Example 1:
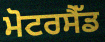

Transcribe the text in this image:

ਮੋਟਰਸੈੱਡ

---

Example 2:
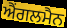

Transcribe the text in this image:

ਐਂਗਲਮੈਨ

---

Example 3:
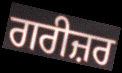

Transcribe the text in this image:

ਗਰੀਜ਼ਰ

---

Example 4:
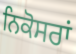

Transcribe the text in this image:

ਨਿਕੋਸਰਾਂ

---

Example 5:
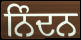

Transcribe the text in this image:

ਨਿੰਦਨ